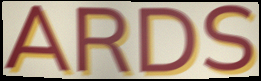
ARDS